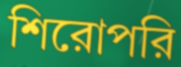
শিরোপরি